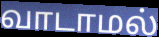
வாடாமல்